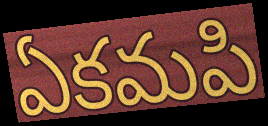
ఏకమపి